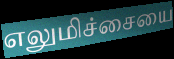
எலுமிச்சையை